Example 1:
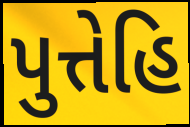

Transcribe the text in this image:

પુત્તેહિ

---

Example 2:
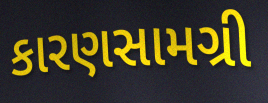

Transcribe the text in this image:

કારણસામગ્રી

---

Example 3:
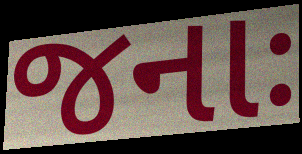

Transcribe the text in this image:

જનાઃ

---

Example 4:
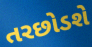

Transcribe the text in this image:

તરછોડશે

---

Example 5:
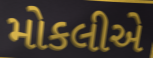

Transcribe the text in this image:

મોકલીએ